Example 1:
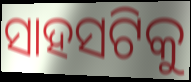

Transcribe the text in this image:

ସାହସଟିକୁ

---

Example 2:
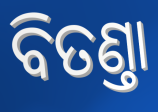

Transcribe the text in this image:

ବିତଣ୍ତା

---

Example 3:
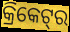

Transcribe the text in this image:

କ୍ରିକେଟ୍‌ର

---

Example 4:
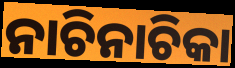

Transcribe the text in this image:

ନାଚିନାଚିକା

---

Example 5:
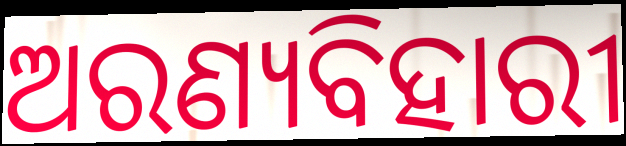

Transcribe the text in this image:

ଅରଣ୍ୟବିହାରୀ